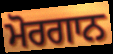
ਮੋਰਗਾਨ